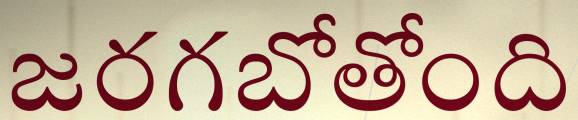
జరగబోతోంది